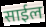
साईल